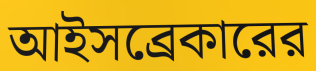
আইসব্রেকারের